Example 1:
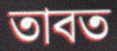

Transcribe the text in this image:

তাবত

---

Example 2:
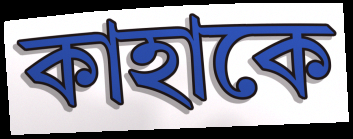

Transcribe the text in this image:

কাহাকে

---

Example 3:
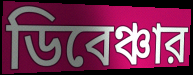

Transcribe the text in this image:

ডিবেঞ্চার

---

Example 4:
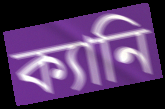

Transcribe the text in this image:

ক্যানি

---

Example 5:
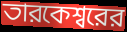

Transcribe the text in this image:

তারকেশ্বরের